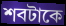
শবটাকে